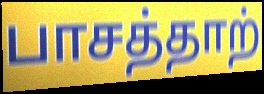
பாசத்தாற்